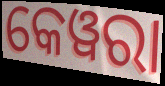
କେୱରା